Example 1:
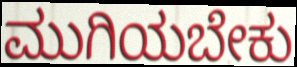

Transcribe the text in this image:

ಮುಗಿಯಬೇಕು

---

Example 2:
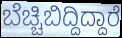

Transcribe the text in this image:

ಬೆಚ್ಚಿಬಿದ್ದಿದ್ದಾರೆ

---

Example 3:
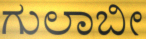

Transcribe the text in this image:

ಗುಲಾಬೀ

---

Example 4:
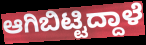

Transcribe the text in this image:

ಆಗಿಬಿಟ್ಟಿದ್ದಾಳೆ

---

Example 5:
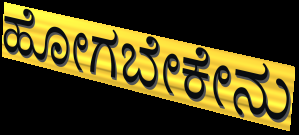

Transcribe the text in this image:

ಹೋಗಬೇಕೇನು